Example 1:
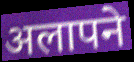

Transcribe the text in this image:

अलापने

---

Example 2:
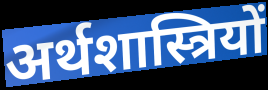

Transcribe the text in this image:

अर्थशास्त्रियों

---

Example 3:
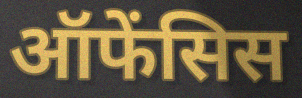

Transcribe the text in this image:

ऑफेंसिस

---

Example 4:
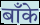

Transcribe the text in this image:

बाँके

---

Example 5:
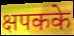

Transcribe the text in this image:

क्षपकके